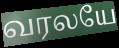
வரலயே